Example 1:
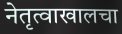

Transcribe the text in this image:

नेतृत्वाखालचा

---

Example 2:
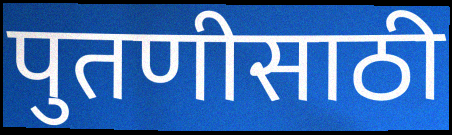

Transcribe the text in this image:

पुतणीसाठी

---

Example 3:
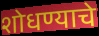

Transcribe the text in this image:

शोधण्याचे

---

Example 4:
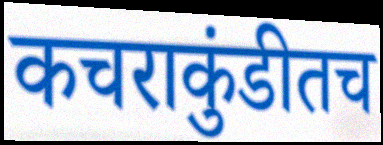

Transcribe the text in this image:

कचराकुंडीतच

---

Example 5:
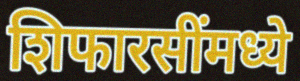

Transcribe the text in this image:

शिफारसींमध्ये